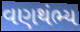
વણથંભ્ય